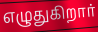
எழுதுகிறார்